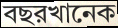
বছরখানেক